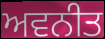
ਅਵਨੀਤ